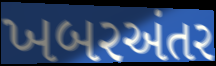
ખબરઅંતર